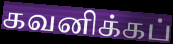
கவனிக்கப்